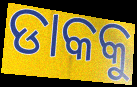
ଡାକକୁ